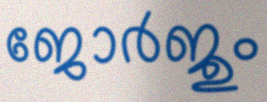
ജോർജും